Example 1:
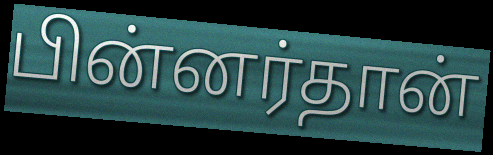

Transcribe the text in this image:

பின்னர்தான்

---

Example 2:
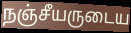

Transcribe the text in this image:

நஞ்சீயருடைய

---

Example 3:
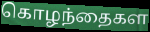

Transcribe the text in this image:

கொழந்தைகள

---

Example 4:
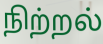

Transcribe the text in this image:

நிற்றல்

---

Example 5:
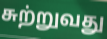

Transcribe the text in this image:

சுற்றுவது